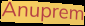
Anuprem